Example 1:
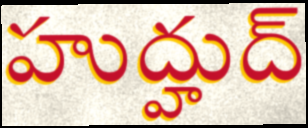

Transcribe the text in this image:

హుద్హుద్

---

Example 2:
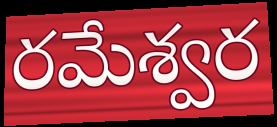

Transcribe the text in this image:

రమేశ్వర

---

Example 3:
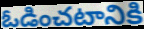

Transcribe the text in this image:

ఓడించటానికి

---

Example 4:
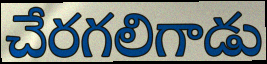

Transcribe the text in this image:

చేరగలిగాడు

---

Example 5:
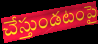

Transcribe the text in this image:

చేస్తుండటంపై